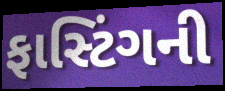
ફાસ્ટિંગની